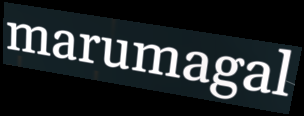
marumagal